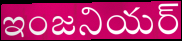
ఇంజనియర్